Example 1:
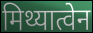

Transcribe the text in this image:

मिथ्यात्वेन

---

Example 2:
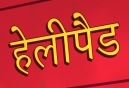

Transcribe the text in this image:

हेलीपैड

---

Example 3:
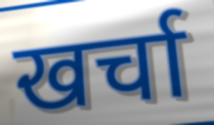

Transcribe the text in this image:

खर्चा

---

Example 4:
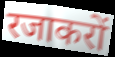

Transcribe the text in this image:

रजाकरों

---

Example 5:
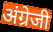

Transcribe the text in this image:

अंग्रेजी